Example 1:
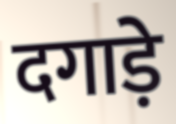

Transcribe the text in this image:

दगाड़े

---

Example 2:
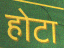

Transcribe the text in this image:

होटा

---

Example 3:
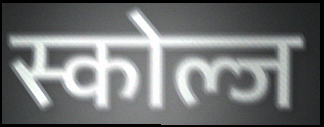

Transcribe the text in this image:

स्कोल्ज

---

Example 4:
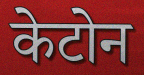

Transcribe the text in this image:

केटोन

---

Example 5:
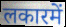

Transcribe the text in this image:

लकारमें